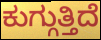
ಕುಗ್ಗುತ್ತಿದೆ